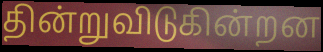
தின்றுவிடுகின்றன